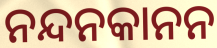
ନନ୍ଦନକାନନ